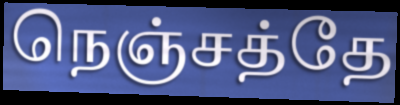
நெஞ்சத்தே